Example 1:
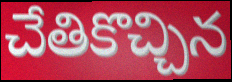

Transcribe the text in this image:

చేతికొచ్చిన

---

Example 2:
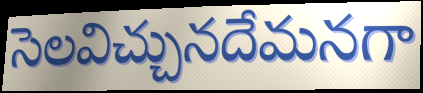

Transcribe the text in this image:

సెలవిచ్చునదేమనగా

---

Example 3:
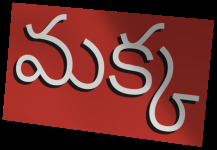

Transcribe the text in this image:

మక్క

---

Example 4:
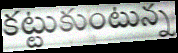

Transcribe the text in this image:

కట్టుకుంటున్న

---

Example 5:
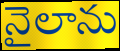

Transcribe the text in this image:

నైలాను